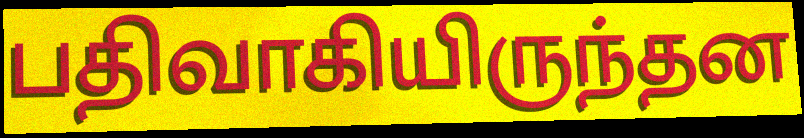
பதிவாகியிருந்தன